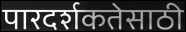
पारदर्शकतेसाठी